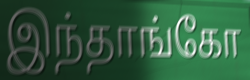
இந்தாங்கோ